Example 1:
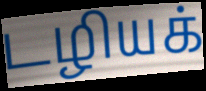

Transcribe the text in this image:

டழியக்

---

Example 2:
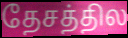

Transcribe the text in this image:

தேசத்தில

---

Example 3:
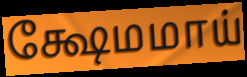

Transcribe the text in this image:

க்ஷேமமாய்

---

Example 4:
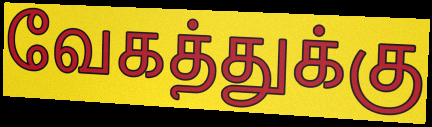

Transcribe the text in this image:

வேகத்துக்கு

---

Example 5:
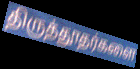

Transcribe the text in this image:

திருத்தூதர்களை